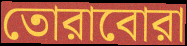
তোরাবোরা